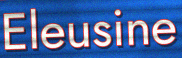
Eleusine